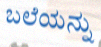
ಬಲೆಯನ್ನು